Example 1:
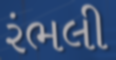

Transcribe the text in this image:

રંભલી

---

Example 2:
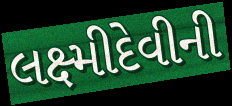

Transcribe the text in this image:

લક્ષ્મીદેવીની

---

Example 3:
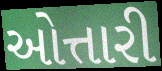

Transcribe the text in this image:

ઓત્તારી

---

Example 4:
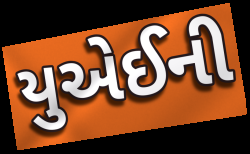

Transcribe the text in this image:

યુએઈની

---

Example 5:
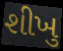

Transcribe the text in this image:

શીખુ